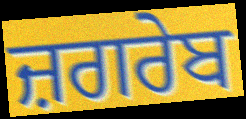
ਜ਼ਗਰੇਬ